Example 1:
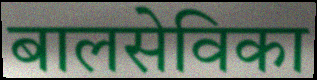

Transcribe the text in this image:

बालसेविका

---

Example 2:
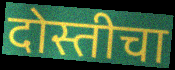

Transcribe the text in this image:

दोस्तीचा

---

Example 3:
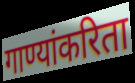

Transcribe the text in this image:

गाण्यांकरिता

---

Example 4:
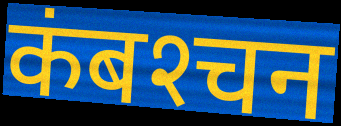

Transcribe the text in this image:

कंबश्चन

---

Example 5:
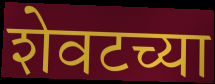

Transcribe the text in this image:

शेवटच्या